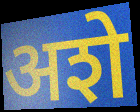
अशे